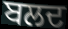
ਬਲਦ